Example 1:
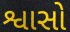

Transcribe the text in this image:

શ્વાસો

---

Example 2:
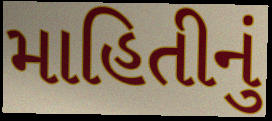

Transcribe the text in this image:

માહિતીનું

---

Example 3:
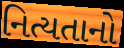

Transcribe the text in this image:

નિત્યતાનો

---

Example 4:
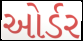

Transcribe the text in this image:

ઓર્ડર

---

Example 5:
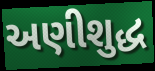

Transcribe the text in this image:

અણીશુદ્ધ